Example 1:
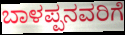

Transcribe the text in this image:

ಬಾಳಪ್ಪನವರಿಗೆ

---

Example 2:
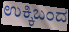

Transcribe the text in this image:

ಉಕ್ಕಿಬಂದ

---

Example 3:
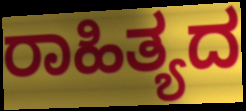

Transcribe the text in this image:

ರಾಹಿತ್ಯದ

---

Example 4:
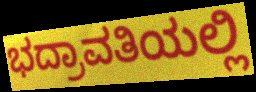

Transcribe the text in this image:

ಭದ್ರಾವತಿಯಲ್ಲಿ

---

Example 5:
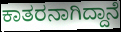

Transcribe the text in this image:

ಕಾತರನಾಗಿದ್ದಾನೆ